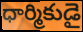
ధార్మికుడై